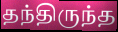
தந்திருந்த